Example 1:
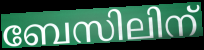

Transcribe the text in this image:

ബേസിലിന്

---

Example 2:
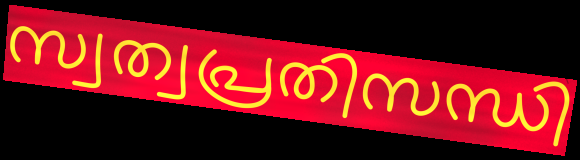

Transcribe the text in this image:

സ്വത്വപ്രതിസന്ധി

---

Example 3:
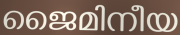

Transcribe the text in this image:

ജൈമിനീയ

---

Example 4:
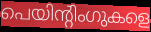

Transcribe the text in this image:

പെയിന്റിംഗുകളെ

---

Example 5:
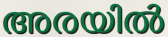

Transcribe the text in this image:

അരയിൽ